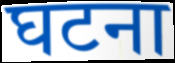
घटना